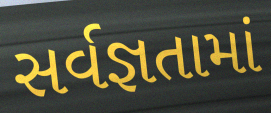
સર્વજ્ઞતામાં